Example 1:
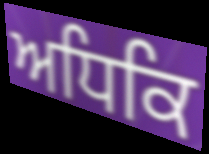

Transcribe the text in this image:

ਅਧਿਕਿ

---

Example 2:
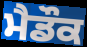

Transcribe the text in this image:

ਮੈਡੌਕ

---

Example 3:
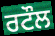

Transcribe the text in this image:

ਰਟੌਲ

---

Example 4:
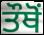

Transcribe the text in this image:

ਤੌਥੋਂ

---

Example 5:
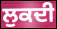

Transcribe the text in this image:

ਲੁਕਦੀ